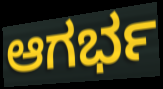
ಆಗರ್ಭ